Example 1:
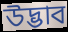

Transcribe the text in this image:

উদ্ভাব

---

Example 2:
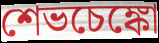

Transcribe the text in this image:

শেভচেঙ্কো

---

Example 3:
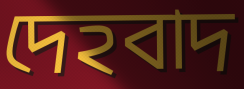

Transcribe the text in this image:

দেহবাদ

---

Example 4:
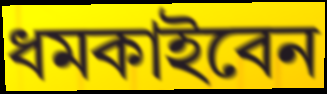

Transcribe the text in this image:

ধমকাইবেন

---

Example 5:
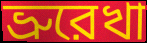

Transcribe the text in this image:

ভ্রুরেখা